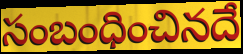
సంబంధించినదే